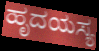
ಹೃದಯಸ್ಯ